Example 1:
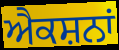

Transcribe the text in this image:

ਐਕਸ਼ਨਾਂ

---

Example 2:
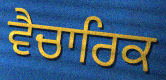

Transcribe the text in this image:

ਵੈਚਾਰਿਕ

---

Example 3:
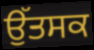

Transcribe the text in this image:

ਉੱਤਸਕ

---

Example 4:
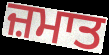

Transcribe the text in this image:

ਜ਼ਮਾਤ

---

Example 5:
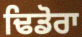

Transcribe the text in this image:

ਢਿਡੋਰਾ